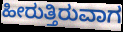
ಹೀರುತ್ತಿರುವಾಗ